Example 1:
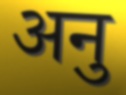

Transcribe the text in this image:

अनु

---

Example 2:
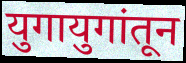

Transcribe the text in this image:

युगायुगांतून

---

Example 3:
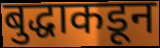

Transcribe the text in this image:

बुद्धाकडून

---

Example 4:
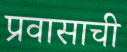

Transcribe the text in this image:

प्रवासाची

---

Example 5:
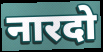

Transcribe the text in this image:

नारदो